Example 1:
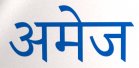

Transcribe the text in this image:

अमेज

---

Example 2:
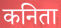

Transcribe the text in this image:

कनिता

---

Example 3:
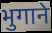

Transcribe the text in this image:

भुगाने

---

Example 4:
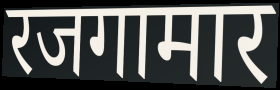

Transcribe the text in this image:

रजगामार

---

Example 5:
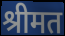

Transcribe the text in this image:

श्रीमत